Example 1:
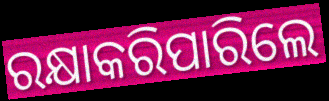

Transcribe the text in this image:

ରକ୍ଷାକରିପାରିଲେ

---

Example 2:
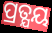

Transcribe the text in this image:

ପ୍ରତ୍ଯୟ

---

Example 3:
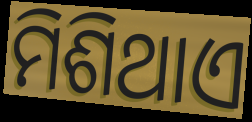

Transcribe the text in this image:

ମିଶିଥାଏ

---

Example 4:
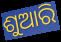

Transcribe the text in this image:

ଶୁଆରି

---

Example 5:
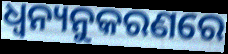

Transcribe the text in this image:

ଧ୍ଵନ୍ୟନୁକରଣରେ